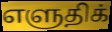
எளுதிக்